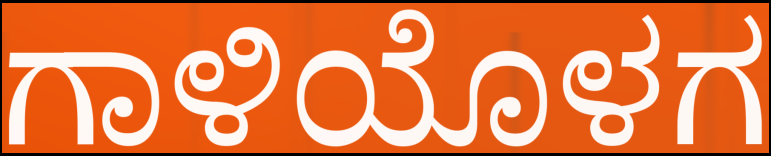
ಗಾಳಿಯೊಳಗ